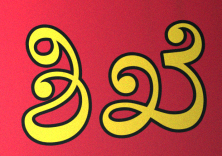
ಶಿಖೆ